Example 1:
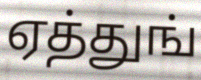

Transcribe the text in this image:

ஏத்துங்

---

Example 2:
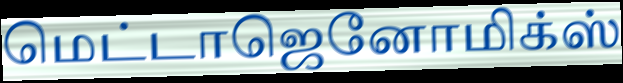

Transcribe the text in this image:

மெட்டாஜெனோமிக்ஸ்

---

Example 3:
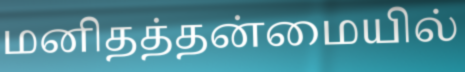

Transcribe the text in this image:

மனிதத்தன்மையில்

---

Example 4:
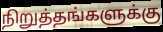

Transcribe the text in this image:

நிறுத்தங்களுக்கு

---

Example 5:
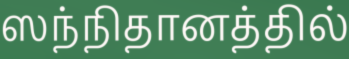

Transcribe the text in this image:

ஸந்நிதானத்தில்